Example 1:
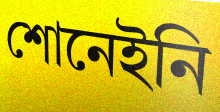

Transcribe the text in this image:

শোনেইনি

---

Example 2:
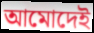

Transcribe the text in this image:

আমোদেই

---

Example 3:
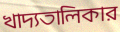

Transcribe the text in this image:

খাদ্যতালিকার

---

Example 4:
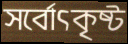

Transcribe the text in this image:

সর্বোৎকৃষ্ট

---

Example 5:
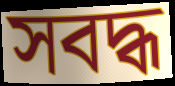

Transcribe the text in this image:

সবদ্ধ